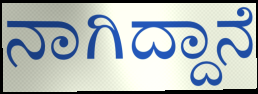
ನಾಗಿದ್ದಾನೆ